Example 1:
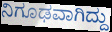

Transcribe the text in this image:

ನಿಗೂಢವಾಗಿದ್ದು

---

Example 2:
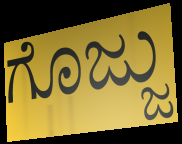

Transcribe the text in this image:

ಗೊಜ್ಜು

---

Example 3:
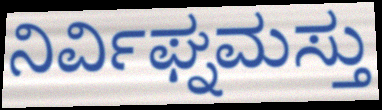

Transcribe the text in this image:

ನಿರ್ವಿಘ್ನಮಸ್ತು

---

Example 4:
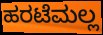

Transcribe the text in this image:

ಹರಟೆಮಲ್ಲ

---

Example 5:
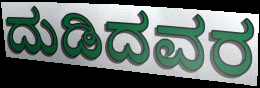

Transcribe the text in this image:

ದುಡಿದವರ